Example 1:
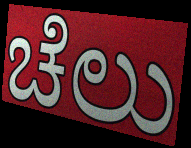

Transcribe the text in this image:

ಚೆಲು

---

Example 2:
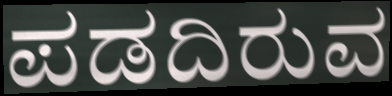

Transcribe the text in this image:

ಪಡದಿರುವ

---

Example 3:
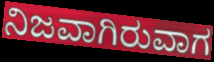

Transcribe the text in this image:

ನಿಜವಾಗಿರುವಾಗ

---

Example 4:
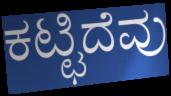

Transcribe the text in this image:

ಕಟ್ಟಿದೆವು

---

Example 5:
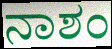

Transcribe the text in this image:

ನಾಶಂ